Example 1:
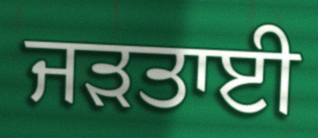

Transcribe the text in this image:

ਜੜਤਾਈ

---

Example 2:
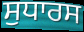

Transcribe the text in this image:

ਸੁਧਾਰਸ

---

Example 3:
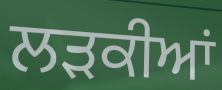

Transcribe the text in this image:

ਲੜਕੀਆਂ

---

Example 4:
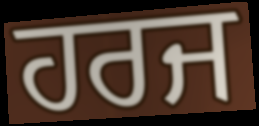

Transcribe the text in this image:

ਹਰਜ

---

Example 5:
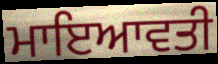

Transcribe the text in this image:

ਮਾਇਆਵਤੀ